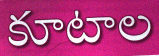
కూటాల